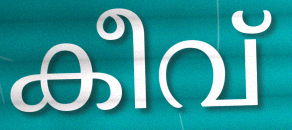
കീവ്